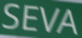
SEVA